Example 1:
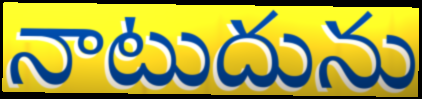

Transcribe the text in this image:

నాటుదును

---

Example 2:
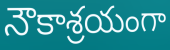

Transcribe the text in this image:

నౌకాశ్రయంగా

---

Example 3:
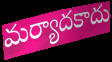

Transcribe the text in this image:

మర్యాదకాదు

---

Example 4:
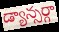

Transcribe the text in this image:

డ్యాన్సర్గా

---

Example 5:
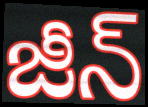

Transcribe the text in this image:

జీన్